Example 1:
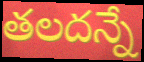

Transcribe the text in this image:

తలదన్నే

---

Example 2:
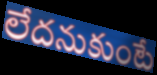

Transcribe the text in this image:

లేదనుకుంటే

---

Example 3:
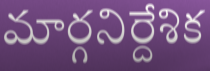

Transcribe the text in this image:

మార్గనిర్దేశిక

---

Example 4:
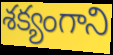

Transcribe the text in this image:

శక్యంగాని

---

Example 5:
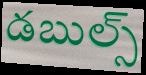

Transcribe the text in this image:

డబుల్స్